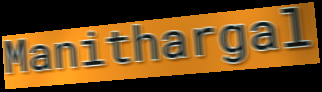
Manithargal